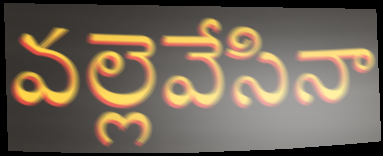
వల్లెవేసినా